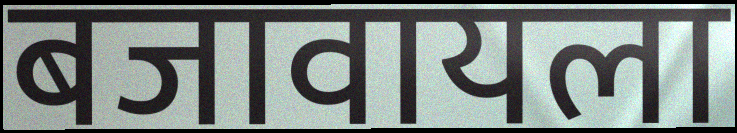
बजावायला